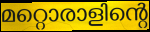
മറ്റൊരാളിന്റെ